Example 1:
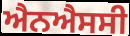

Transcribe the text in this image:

ਐਨਐਸਸੀ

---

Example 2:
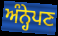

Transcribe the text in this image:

ਅੰਨ੍ਹੇਪਣ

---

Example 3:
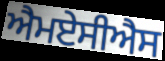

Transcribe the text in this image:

ਐਮਏਸੀਐਸ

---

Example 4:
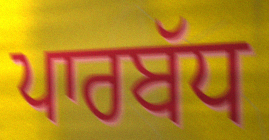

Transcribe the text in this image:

ਪਾਰਬੱਧ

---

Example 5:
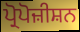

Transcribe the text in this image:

ਪ੍ਰੋਪੋਜ਼ੀਸ਼ਨ